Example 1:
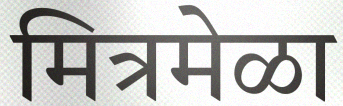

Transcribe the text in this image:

मित्रमेळा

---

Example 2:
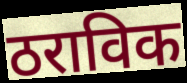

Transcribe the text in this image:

ठराविक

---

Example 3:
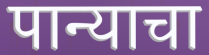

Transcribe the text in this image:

पान्याचा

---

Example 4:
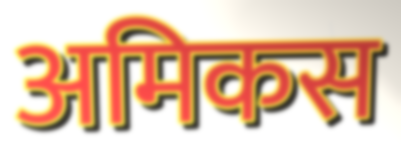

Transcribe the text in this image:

अमिकस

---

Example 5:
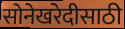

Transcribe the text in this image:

सोनेखरेदीसाठी